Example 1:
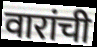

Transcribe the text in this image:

वारांची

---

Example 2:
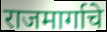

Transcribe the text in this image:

राजमार्गाचे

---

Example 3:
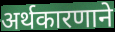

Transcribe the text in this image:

अर्थकारणाने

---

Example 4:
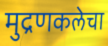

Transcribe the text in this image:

मुद्रणकलेचा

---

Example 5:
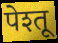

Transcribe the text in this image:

पेश्तू